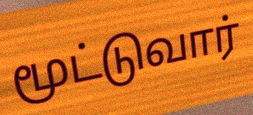
மூட்டுவார்